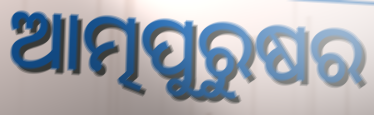
ଆତ୍ମପୁରୁଷର